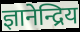
ज्ञानेन्द्रिय